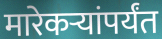
मारेकऱ्यांपर्यंत